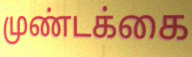
முண்டக்கை